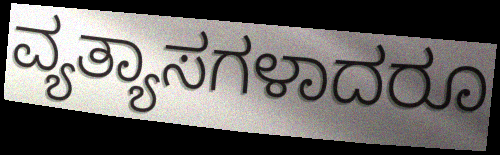
ವ್ಯತ್ಯಾಸಗಳಾದರೂ